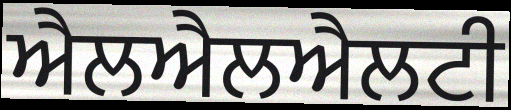
ਐਲਐਲਐਲਟੀ